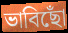
ভাবিছোঁ